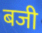
बजी